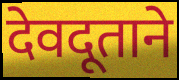
देवदूताने